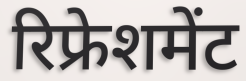
रिफ्रेशमेंट